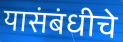
यासंबंधीचे